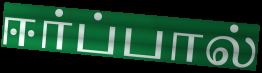
ஈர்ப்பால்